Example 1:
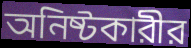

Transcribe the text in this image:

অনিষ্টকারীর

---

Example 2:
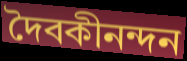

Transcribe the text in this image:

দৈবকীনন্দন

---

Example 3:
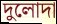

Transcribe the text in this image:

দুলোদা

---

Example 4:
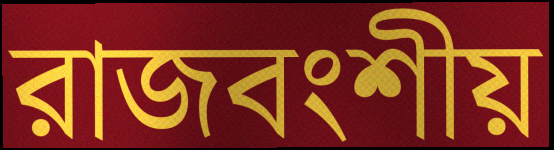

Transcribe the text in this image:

রাজবংশীয়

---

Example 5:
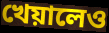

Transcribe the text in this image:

খেয়ালেও